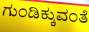
ಗುಂಡಿಕ್ಕುವಂತೆ